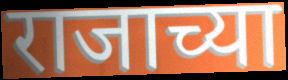
राजाच्या